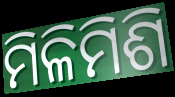
ମିଳିମିଶି